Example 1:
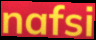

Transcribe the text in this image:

nafsi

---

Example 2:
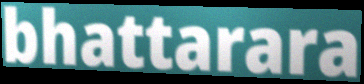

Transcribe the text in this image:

bhattarara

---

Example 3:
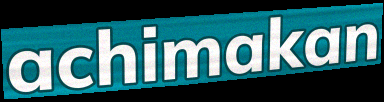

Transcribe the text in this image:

achimakan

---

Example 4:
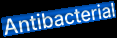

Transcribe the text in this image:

Antibacterial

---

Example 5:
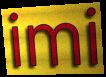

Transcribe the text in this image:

imi